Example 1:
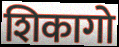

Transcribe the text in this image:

शिकागो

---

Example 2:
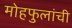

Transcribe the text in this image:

मोहफुलांची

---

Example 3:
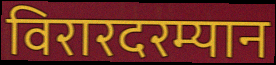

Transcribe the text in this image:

विरारदरम्यान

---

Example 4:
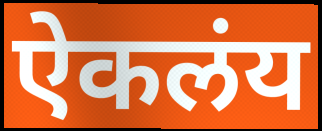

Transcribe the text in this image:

ऐकलंय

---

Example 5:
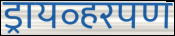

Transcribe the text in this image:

ड्रायव्हरपण